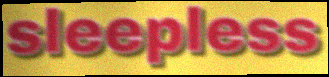
sleepless